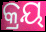
କ୍ରୟ